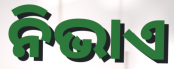
ନିଭାଏ